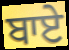
ਬਾਏ